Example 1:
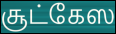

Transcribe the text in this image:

சூட்கேஸ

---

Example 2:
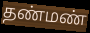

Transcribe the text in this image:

தண்மண்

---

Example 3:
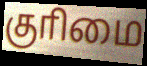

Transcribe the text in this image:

குரிமை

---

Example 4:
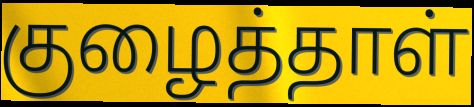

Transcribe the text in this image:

குழைத்தாள்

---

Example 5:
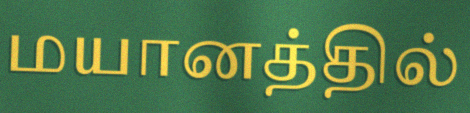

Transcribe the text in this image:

மயானத்தில்